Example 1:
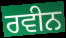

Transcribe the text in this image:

ਰਵੀਨ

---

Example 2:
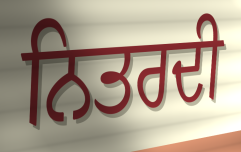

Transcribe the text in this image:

ਨਿਤਰਦੀ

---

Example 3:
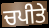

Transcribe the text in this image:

ਚਪੀਤੇ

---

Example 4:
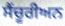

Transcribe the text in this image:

ਸੈਂਚੂਰੀਅਨ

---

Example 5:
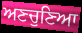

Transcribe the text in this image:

ਅਣਚੁਣਿਆ